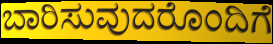
ಬಾರಿಸುವುದರೊಂದಿಗೆ